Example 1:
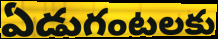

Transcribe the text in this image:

ఏడుగంటలకు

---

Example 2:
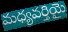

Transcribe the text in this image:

మధ్యవర్తియై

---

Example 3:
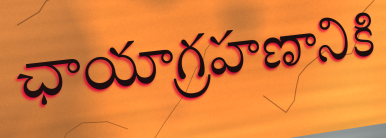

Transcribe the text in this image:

ఛాయాగ్రహణానికి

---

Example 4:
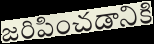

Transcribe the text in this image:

జరిపించడానికి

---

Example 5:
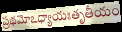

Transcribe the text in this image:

ప్రథమోఽధ్యాయఃతృతీయం